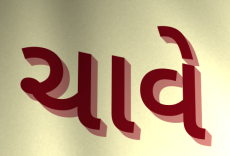
ચાવે